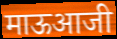
माऊआजी